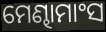
ମେଣ୍ଢାମାଂସ